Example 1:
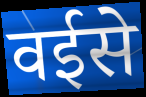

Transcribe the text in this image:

वईसे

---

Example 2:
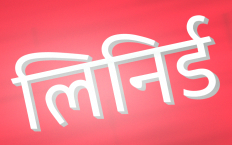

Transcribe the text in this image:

लिनिर्ड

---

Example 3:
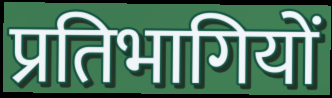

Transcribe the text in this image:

प्रतिभागियों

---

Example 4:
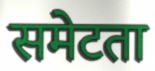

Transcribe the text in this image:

समेटता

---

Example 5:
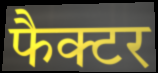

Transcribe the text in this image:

फैक्टर